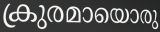
ക്രുരമായൊരു